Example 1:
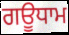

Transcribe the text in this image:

ਗਊਧਾਮ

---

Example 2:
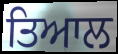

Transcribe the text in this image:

ਤਿਆਲ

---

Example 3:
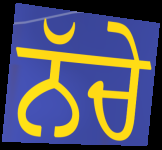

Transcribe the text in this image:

ਨੱਚੇ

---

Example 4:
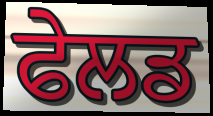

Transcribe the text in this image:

ਫੇਲਡ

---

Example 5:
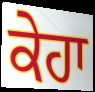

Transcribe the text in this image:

ਕੇਹਾ